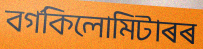
বৰ্গকিলোমিটাৰৰ